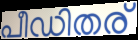
പീഡിതര്